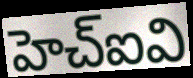
హెచ్ఐవి